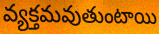
వ్యక్తమవుతుంటాయి